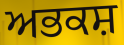
ਅਭਕਸ਼